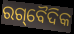
ରଗ୍‌ବୈଦିକ